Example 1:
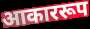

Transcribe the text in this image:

आकाररूप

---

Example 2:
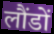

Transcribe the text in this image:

लौंडों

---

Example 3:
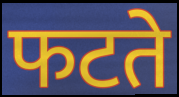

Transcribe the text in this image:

फटते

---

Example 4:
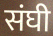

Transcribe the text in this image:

संघी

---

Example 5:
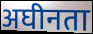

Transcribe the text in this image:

अघीनता